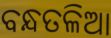
ବନ୍ଧତଳିଆ